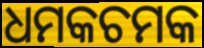
ଧମକଚମକ